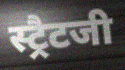
स्ट्रैटजी